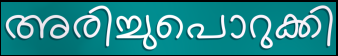
അരിച്ചുപൊറുക്കി